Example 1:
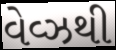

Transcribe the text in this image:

વેવ્ઝથી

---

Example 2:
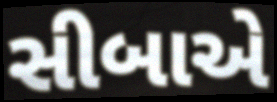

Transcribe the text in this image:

સીબાએ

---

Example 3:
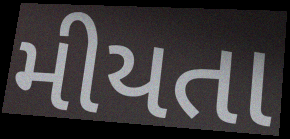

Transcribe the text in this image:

મીયતા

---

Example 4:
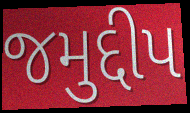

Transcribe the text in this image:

જમુદ્દીપ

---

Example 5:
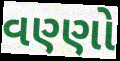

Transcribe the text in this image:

વણ્ણો